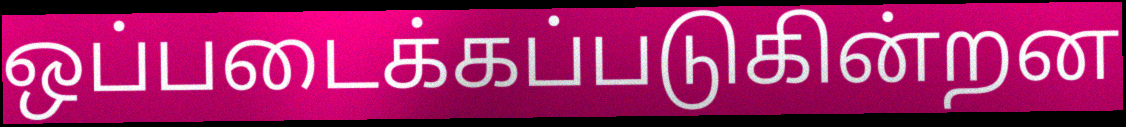
ஒப்படைக்கப்படுகின்றன